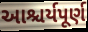
આશ્ચર્યપૂર્ણ